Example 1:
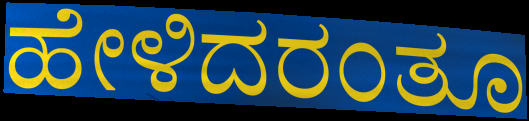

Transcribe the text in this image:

ಹೇಳಿದರಂತೂ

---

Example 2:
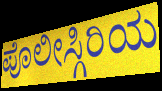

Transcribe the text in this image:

ಪೊಲೀಸ್ಗಿರಿಯ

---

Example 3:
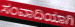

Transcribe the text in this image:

ಸಂವಾದಿಯಾಗಿ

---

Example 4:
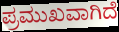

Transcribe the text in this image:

ಪ್ರಮುಖವಾಗಿದೆ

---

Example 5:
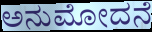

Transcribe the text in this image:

ಅನುಮೋದನೆ